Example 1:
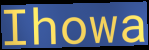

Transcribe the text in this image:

Ihowa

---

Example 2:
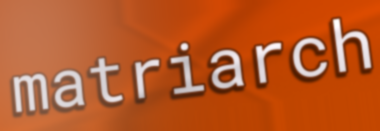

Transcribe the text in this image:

matriarch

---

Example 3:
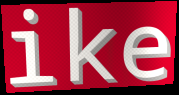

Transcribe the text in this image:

ike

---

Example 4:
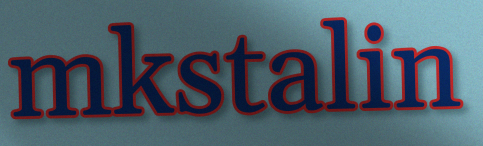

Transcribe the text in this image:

mkstalin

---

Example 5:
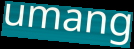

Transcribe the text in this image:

umang